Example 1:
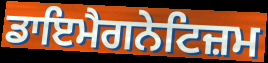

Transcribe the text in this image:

ਡਾਇਮੈਗਨੇਟਿਜ਼ਮ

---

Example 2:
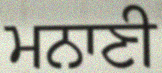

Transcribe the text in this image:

ਮਨਾਣੀ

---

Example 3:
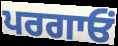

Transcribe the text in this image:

ਪਰਗਾਓਂ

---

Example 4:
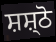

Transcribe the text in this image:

ਸ਼ਸ਼੍ਠੋ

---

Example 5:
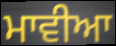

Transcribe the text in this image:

ਮਾਵੀਆ